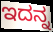
ಇದನ್ನ